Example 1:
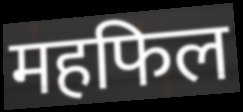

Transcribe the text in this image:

महफिल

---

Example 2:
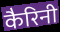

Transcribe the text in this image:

कैरिनी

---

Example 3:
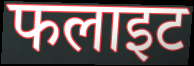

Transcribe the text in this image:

फलाइट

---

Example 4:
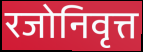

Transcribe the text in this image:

रजोनिवृत्त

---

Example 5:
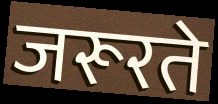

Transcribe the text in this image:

जरूरते